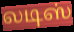
லடிஸ்